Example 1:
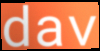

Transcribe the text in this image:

dav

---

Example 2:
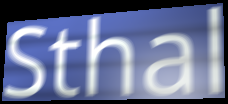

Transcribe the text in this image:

Sthal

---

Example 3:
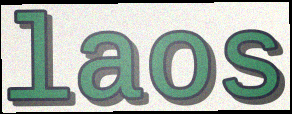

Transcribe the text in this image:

laos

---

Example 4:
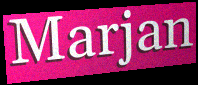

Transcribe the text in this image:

Marjan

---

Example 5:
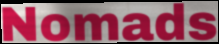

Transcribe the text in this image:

Nomads